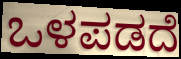
ಒಳಪಡದೆ